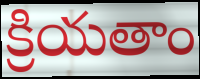
క్రియతాం